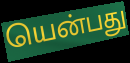
யென்பது